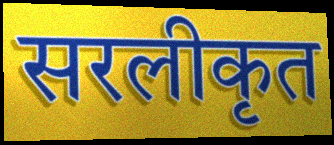
सरलीकृत